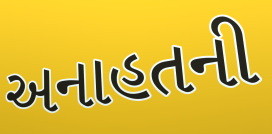
અનાહતની